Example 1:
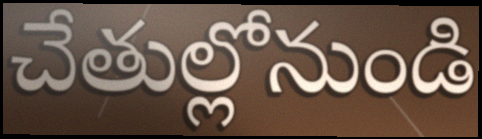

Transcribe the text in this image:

చేతుల్లోనుండి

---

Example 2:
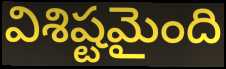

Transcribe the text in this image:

విశిష్టమైంది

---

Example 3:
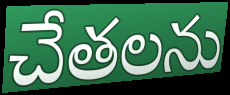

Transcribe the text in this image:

చేతలను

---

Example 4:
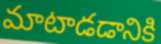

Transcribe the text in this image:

మాటాడడానికి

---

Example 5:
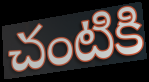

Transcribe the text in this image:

చంటికి